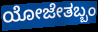
ಯೋಜೇತಬ್ಬಂ